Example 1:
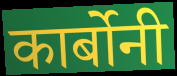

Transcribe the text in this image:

कार्बोनी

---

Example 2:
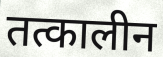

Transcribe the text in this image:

तत्कालीन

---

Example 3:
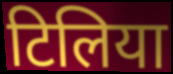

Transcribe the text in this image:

टिलिया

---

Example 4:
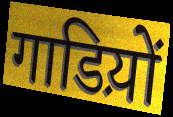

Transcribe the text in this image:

गाडिय़ों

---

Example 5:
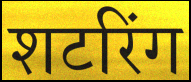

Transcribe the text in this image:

शटरिंग